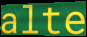
alte